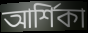
আর্শিকা